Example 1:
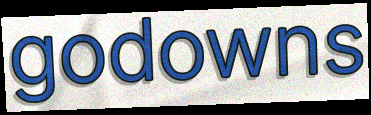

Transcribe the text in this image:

godowns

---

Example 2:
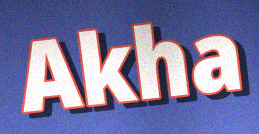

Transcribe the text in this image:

Akha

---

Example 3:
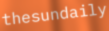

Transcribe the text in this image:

thesundaily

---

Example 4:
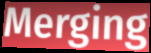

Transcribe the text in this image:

Merging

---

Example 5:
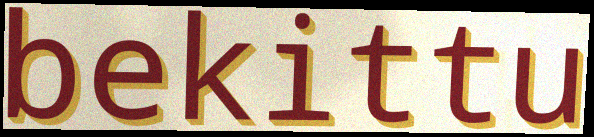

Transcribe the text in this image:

bekittu